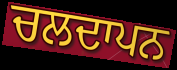
ਚਲਦਾਪਨ